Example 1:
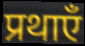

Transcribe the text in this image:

प्रथाएँ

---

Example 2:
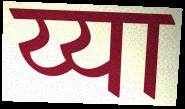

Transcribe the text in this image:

य्या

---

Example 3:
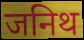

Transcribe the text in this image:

जनिथ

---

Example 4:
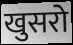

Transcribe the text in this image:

खुसरो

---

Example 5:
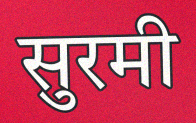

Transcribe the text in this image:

सुरमी